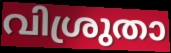
വിശ്രുതാ